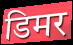
डिमर